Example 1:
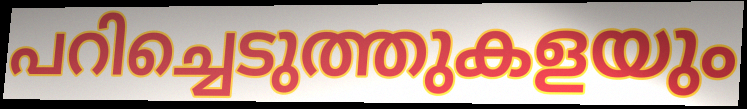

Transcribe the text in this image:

പറിച്ചെടുത്തുകളയും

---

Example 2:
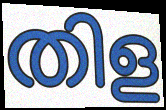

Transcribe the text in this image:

തിള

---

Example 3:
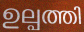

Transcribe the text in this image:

ഉല്പത്തി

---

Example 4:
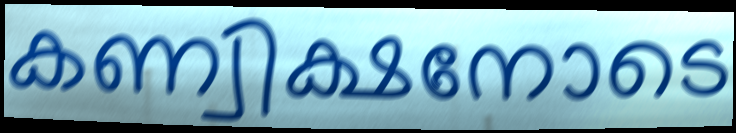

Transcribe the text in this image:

കണ്വിക്ഷനോടെ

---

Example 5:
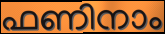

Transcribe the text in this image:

ഫണിനാം